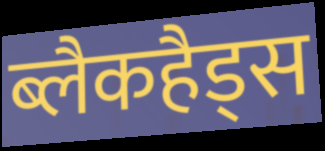
ब्लैकहैड्स